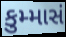
કુમ્માસં